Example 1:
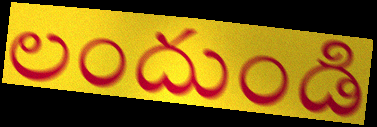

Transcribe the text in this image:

లందుండి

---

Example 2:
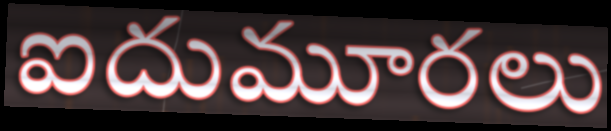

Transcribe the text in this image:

ఐదుమూరలు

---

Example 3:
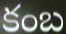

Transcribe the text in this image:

కంబ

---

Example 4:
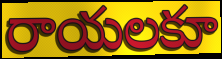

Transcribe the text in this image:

రాయలకూ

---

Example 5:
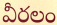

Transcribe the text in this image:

వీరలం